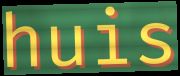
huis